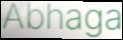
Abhaga